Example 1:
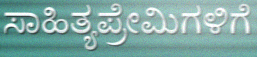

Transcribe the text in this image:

ಸಾಹಿತ್ಯಪ್ರೇಮಿಗಳಿಗೆ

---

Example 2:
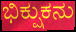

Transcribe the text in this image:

ಭಿಕ್ಷುಕನು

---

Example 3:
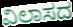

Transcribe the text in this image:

ವಿಲಾಸದ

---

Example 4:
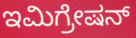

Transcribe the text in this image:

ಇಮಿಗ್ರೇಷನ್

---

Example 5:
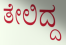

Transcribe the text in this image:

ತೇಲಿದ್ದ